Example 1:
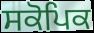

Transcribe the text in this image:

ਸਕੋਪਿਕ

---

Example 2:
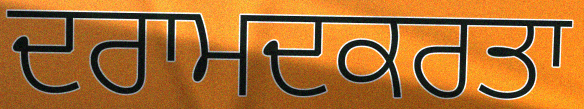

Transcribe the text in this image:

ਦਰਾਮਦਕਰਤਾ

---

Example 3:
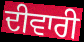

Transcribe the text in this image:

ਦੀਵਾਰੀ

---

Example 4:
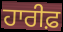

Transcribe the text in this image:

ਹਾਰੀਫ਼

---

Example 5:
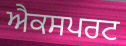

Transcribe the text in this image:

ਐਕਸਪਰਟ